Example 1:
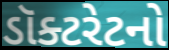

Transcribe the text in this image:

ડૉક્ટરેટનો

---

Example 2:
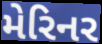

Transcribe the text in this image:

મેરિનર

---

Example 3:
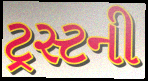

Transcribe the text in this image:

ટ્રસ્ટની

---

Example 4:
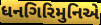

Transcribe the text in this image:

ધનગિરિમુનિએ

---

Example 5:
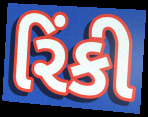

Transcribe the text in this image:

રિંકી